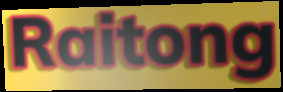
Raitong